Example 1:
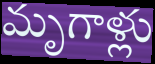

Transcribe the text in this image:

మృగాళ్లు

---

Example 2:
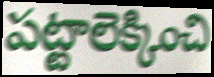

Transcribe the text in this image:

పట్టాలెక్కించి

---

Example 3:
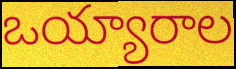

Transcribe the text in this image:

ఒయ్యారాల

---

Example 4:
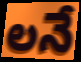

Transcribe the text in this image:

లనే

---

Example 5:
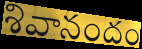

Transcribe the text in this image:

శివానందం